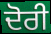
ਦੋਰੀ